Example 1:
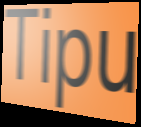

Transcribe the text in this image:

Tipu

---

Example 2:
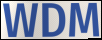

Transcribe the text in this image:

WDM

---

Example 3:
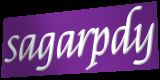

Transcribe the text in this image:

sagarpdy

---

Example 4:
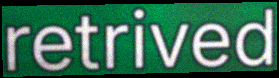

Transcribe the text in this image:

retrived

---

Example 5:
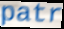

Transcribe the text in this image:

patr